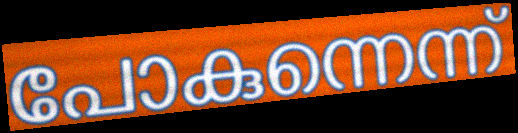
പോകുന്നെന്ന്